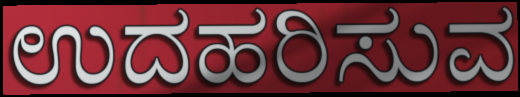
ಉದಹರಿಸುವ